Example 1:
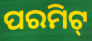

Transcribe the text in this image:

ପରମିଟ୍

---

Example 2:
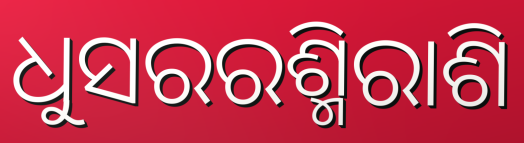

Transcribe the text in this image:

ଧୁସରରଶ୍ମିରାଶି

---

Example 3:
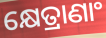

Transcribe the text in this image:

କ୍ଷେତ୍ରାଣାଂ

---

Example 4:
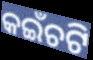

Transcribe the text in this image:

କଇଁଚଟି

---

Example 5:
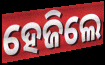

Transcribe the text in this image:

ହେଜିଲେ